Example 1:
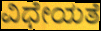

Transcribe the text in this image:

ವಿಧೇಯತೆ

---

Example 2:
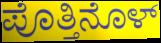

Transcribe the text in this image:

ಪೊತ್ತಿನೊಳ್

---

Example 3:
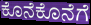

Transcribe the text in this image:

ಕೊನೆಕೊನೆಗೆ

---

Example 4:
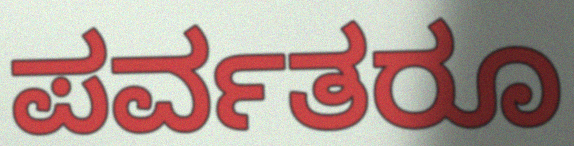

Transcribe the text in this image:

ಪರ್ವತರೂ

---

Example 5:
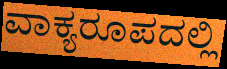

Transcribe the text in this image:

ವಾಕ್ಯರೂಪದಲ್ಲಿ